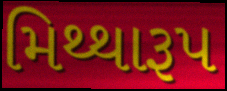
મિથ્થારૂપ